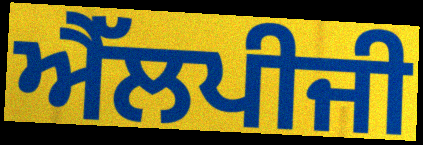
ਐੱਲਪੀਜੀ